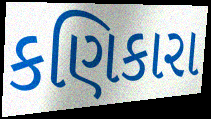
કણિકારા